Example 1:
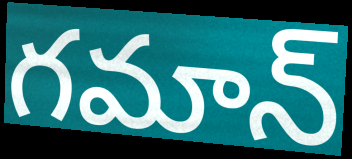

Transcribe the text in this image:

గమాన్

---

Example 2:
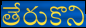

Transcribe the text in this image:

తేరుకొని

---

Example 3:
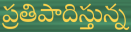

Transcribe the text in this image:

ప్రతిపాదిస్తున్న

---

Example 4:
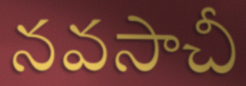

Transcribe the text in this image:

నవసాచీ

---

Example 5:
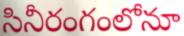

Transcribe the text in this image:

సినీరంగంలోనూ